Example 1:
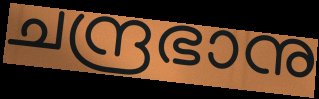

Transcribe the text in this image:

ചന്ദ്രഭാനു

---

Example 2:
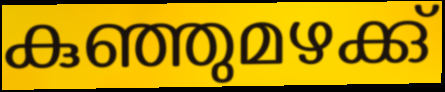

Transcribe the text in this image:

കുഞ്ഞുമഴക്കു്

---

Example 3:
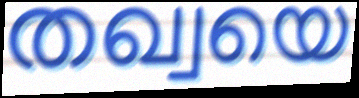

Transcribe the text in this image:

തഖ്വയെ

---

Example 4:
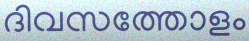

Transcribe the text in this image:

ദിവസത്തോളം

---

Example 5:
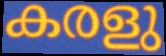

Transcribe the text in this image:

കരളു